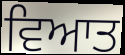
ਵਿਆਤ